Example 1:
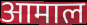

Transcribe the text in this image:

आमाल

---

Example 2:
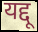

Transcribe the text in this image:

यद्दू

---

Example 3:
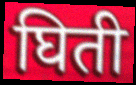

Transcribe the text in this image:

घिती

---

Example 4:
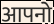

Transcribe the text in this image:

आपनो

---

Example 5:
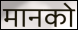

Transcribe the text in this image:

मानको